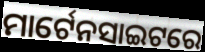
ମାର୍ଟେନସାଇଟରେ